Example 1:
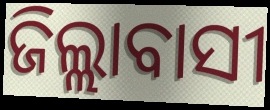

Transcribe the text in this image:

ଜିଲ୍ଲାବାସୀ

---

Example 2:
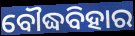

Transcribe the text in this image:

ବୌଦ୍ଧବିହାର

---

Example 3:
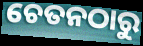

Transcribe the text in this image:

ଚେତନଠାରୁ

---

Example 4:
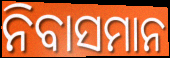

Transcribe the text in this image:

ନିବାସମାନ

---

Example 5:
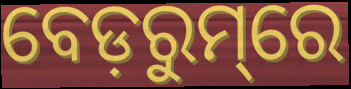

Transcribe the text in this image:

ବେଡ଼ରୁମ୍‌ରେ